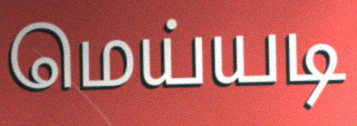
மெய்யடி